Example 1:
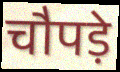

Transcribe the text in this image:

चौपड़े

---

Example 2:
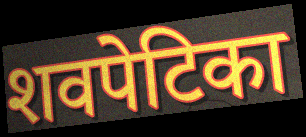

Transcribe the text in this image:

शवपेटिका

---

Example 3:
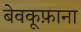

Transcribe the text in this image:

बेवकूफ़ाना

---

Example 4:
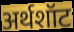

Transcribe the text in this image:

अर्थशॉट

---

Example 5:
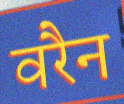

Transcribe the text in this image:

वरैन